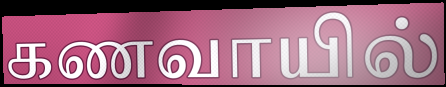
கணவாயில்